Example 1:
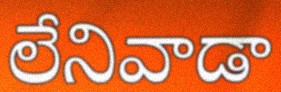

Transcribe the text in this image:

లేనివాడా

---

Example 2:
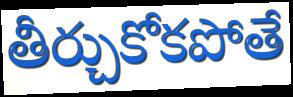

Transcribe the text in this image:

తీర్చుకోకపోతే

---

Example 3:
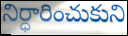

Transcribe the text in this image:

నిర్ధారించుకుని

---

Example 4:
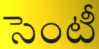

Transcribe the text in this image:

సెంటీ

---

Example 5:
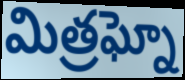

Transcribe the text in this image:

మిత్రఘ్నో